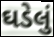
ઘડેલું